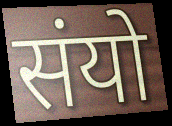
संयो